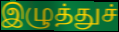
இழுத்துச்